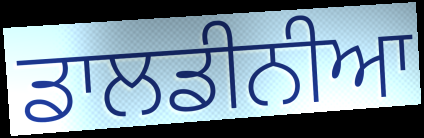
ਡਾਲਡੀਨੀਆ